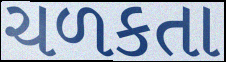
ચળકતા